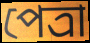
পেত্রা